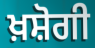
ਖ਼ਸ਼ੋਗੀ